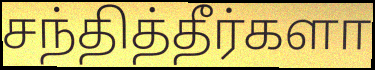
சந்தித்தீர்களா